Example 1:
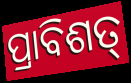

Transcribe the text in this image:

ପ୍ରାବିଶତ୍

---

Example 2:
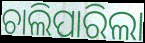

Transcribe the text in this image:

ଚାଲିପାରିଲା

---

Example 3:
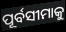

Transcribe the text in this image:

ପୂର୍ବସୀମାକୁ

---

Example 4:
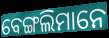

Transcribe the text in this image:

ବେଙ୍ଗଲିମାନେ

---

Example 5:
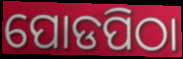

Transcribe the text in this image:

ପୋଡପିଠା